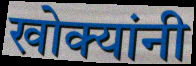
खोक्यांनी